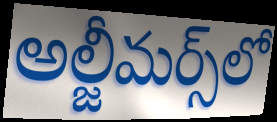
అల్జీమర్స్‌లో